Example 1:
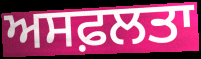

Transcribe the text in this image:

ਅਸਫ਼ਲਤਾ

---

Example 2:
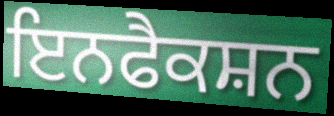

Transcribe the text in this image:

ਇਨਫੈਕਸ਼ਨ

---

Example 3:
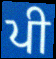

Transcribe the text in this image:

ਪੀ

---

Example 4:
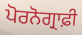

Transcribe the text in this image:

ਪੋਰਨੋਗ੍ਰਾਫ਼ੀ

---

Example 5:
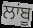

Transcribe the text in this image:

ਲਾਂਬੂ